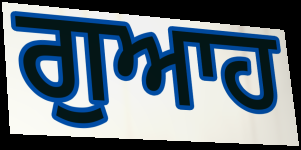
ਗੁਆਹ